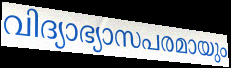
വിദ്യാഭ്യാസപരമായും